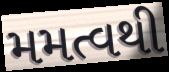
મમત્વથી